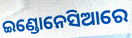
ଇଣ୍ଡୋନେସିଆରେ